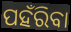
ପହଁରିବା